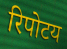
रिपोटय